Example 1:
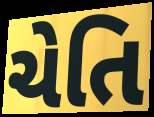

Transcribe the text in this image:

ચેતિ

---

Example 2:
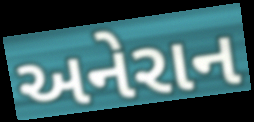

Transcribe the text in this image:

અનેરાન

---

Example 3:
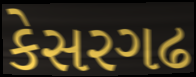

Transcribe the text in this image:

કેસરગઢ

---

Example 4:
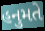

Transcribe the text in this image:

હનુમતે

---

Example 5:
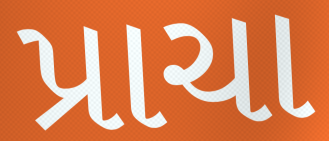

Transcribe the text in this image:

પ્રાચા